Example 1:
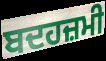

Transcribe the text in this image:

ਬਦਹਜ਼ਮੀ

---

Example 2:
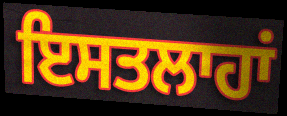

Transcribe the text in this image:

ਇਸਤਲਾਹਾਂ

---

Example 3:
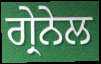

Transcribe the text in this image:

ਗ੍ਰੇਨੇਲ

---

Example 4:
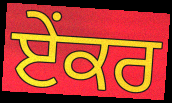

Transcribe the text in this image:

ਏੰਕਰ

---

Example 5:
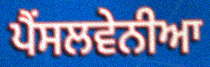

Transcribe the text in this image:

ਪੈਂਸਲਵੇਨੀਆ